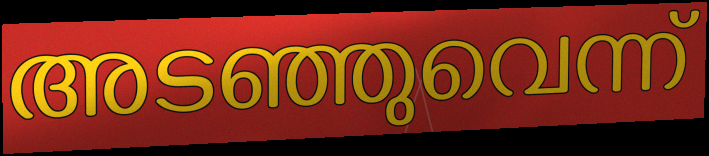
അടഞ്ഞുവെന്ന്